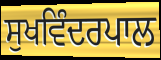
ਸੁਖਵਿੰਦਰਪਾਲ